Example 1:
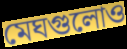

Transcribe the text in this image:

মেঘগুলোও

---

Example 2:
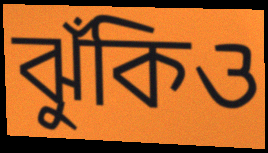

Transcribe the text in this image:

ঝুঁকিও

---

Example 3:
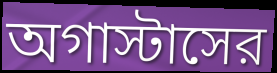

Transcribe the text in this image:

অগাস্টাসের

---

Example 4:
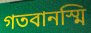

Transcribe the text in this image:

গতবানস্মি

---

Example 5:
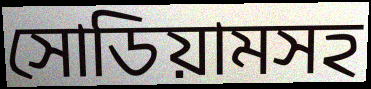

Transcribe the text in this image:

সোডিয়ামসহ